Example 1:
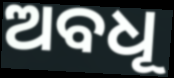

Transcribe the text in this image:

ଅବଧୂ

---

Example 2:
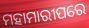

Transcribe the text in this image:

ମହାମାରୀପରେ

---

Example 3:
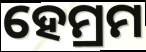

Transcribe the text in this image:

ହେମ୍ରମ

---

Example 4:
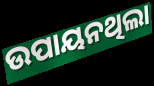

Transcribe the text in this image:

ଉପାୟନଥିଲା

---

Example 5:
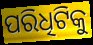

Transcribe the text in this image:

ପରିଧିଟିକୁ